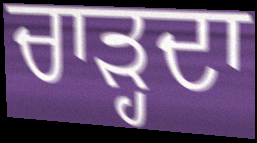
ਚਾੜ੍ਹਦਾ